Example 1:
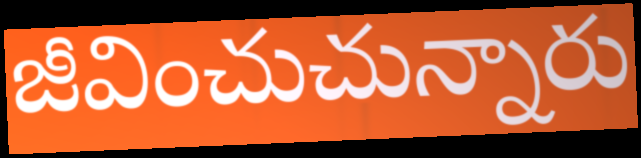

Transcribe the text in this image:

జీవించుచున్నారు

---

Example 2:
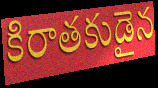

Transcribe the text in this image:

కిరాతకుడైన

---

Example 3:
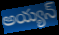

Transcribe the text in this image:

అయ్యన్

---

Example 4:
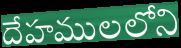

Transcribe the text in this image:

దేహములలోని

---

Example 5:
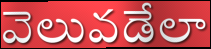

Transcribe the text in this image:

వెలువడేలా